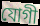
যোগী